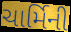
ચાર્મિની